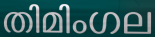
തിമിംഗല